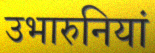
उभारुनियां